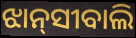
ଝାନ୍‌ସୀବାଲି